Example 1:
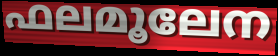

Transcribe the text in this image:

ഫലമൂലേന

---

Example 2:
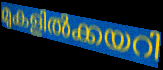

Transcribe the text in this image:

മുകളിൽക്കയറി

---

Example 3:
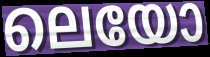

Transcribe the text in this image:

ലെയോ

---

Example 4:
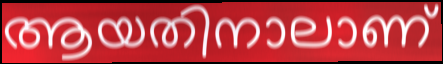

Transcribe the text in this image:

ആയതിനാലാണ്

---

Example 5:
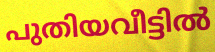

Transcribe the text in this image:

പുതിയവീട്ടിൽ